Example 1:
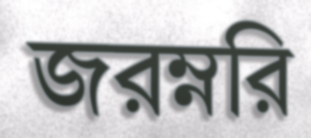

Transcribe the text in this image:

জরম্নরি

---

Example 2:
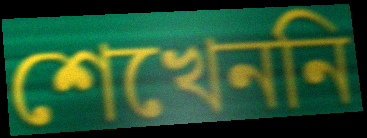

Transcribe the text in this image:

শেখেননি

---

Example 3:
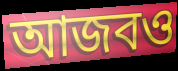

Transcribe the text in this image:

আজবও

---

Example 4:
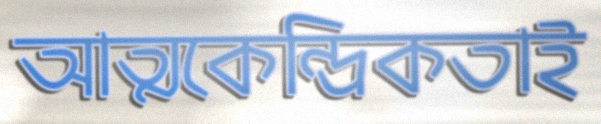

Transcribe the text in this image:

আত্মকেন্দ্রিকতাই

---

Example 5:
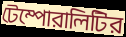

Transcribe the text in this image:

টেম্পোরালিটির